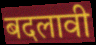
बदलावी